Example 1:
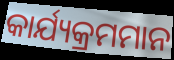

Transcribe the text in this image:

କାର୍ଯ୍ୟକ୍ରମମାନ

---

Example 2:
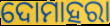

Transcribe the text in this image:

ଦୋମାହରା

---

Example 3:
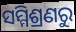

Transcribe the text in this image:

ସମ୍ମିଶ୍ରଣରୁ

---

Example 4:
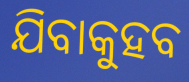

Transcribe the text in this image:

ଯିବାକୁହବ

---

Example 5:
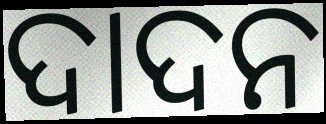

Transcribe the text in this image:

ଦାଦନ